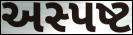
અસ્પષ્ટ